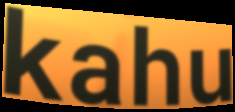
kahu